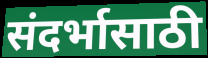
संदर्भासाठी